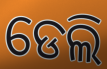
ଡେଲି